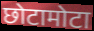
छोटामोटा